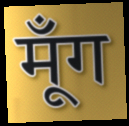
मूँग